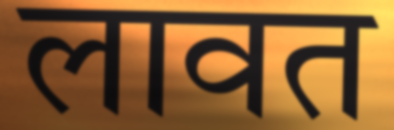
लावत